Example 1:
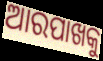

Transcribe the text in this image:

ଆରପାଖକୁ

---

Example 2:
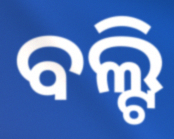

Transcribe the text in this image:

ବଲ୍ଟି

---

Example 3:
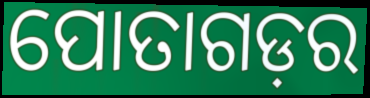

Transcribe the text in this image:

ପୋତାଗଡ଼ର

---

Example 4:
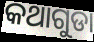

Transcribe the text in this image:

କଥାଗୁଡା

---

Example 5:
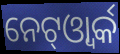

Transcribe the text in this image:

ନେଟ୍ଓ୍ବାର୍କ